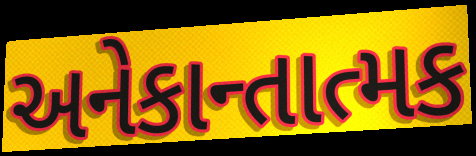
અનેકાન્તાત્મક